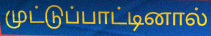
முட்டுப்பாட்டினால்